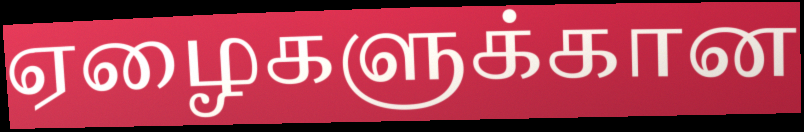
ஏழைகளுக்கான